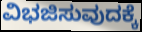
ವಿಭಜಿಸುವುದಕ್ಕೆ